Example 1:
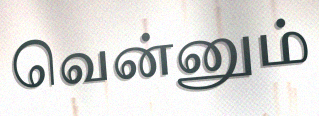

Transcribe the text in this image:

வென்னும்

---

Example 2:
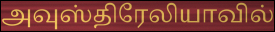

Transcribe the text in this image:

அவுஸ்திரேலியாவில்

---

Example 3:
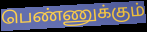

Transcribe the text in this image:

பெண்ணுக்கும்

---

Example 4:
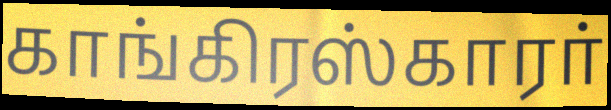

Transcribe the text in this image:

காங்கிரஸ்காரர்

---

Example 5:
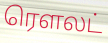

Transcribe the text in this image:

ரௌலட்